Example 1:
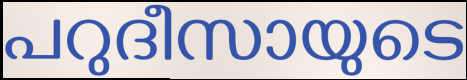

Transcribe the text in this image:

പറുദീസായുടെ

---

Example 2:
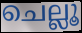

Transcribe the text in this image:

ചെല്ലൂ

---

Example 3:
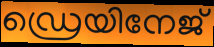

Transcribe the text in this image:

ഡ്രെയിനേജ്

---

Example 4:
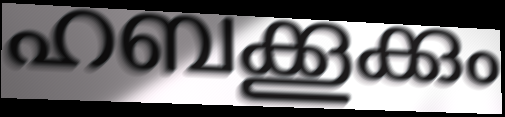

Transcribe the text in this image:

ഹബക്കൂക്കും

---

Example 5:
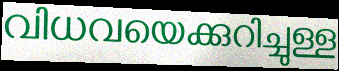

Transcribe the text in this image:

വിധവയെക്കുറിച്ചുള്ള